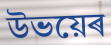
উভয়েৰ